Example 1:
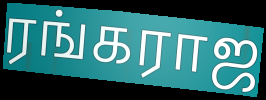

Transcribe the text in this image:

ரங்கராஜ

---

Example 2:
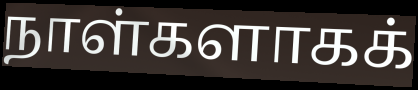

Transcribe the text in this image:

நாள்களாகக்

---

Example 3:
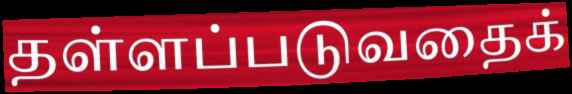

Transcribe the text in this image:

தள்ளப்படுவதைக்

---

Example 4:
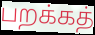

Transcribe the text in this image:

பறக்கத்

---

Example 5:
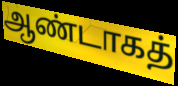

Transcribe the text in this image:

ஆண்டாகத்